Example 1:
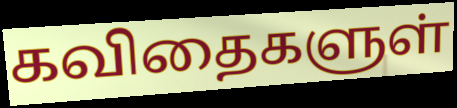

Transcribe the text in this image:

கவிதைகளுள்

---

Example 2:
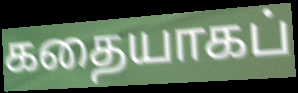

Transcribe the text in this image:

கதையாகப்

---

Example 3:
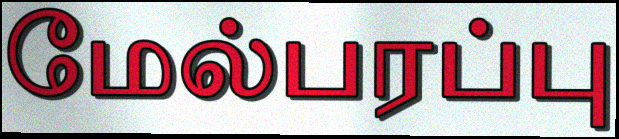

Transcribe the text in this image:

மேல்பரப்பு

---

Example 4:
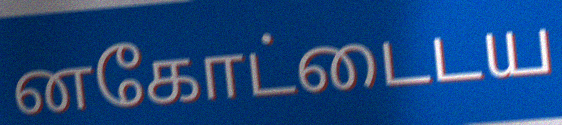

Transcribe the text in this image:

னகோட்டைடய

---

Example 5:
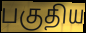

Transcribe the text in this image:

பகுதிய